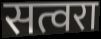
सत्वरा